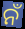
ନଁ